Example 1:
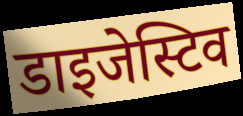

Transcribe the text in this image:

डाइजेस्टिव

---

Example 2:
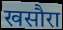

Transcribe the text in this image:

खसौरा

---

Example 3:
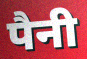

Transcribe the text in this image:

पैनी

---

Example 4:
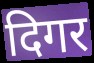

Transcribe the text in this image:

दिगर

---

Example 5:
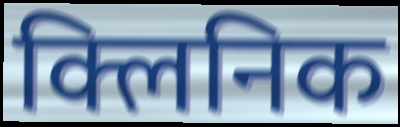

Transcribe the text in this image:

क्लिनिक